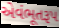
એવંભૂતરૂપ